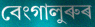
বেংগালুৰুৰ